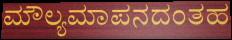
ಮೌಲ್ಯಮಾಪನದಂತಹ